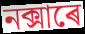
নক্সাৰে